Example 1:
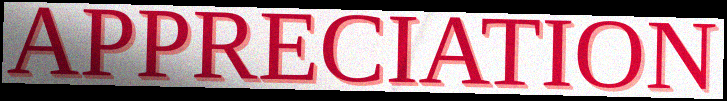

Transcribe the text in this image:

APPRECIATION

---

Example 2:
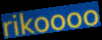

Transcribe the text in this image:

rikoooo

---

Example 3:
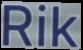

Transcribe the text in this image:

Rik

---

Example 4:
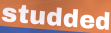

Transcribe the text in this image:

studded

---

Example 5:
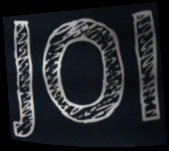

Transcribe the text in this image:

JOI